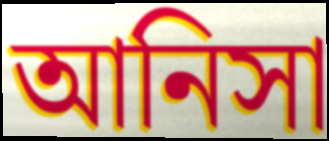
আনিসা